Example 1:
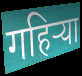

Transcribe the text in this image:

गहिऱ्या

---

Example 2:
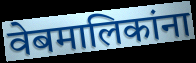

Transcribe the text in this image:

वेबमालिकांना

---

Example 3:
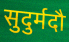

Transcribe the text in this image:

सुदुर्मदौ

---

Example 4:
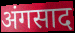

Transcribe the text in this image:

अंगसाद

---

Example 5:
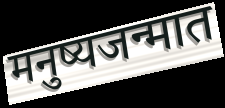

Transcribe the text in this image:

मनुष्यजन्मात